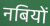
नबियों